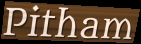
Pitham